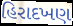
હિરાદખણ